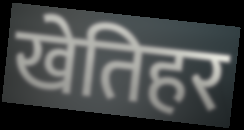
खेतिहर